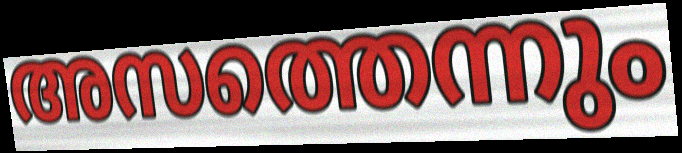
അസത്തെന്നും